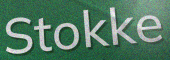
Stokke